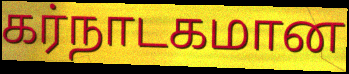
கர்நாடகமான